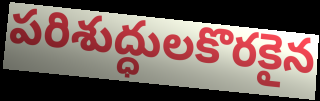
పరిశుద్ధులకొరకైన